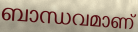
ബാന്ധവമാണ്